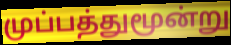
முப்பத்துமூன்று